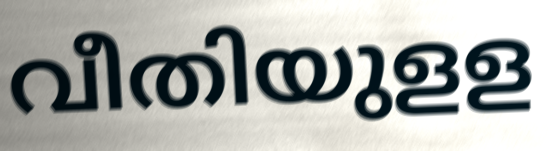
വീതിയുളള